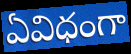
ఏవిధంగా